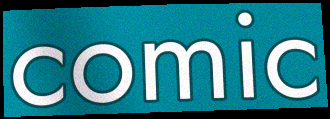
comic